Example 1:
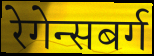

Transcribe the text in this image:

रेगेन्सबर्ग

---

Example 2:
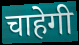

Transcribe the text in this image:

चाहेगी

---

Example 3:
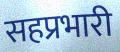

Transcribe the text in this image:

सहप्रभारी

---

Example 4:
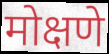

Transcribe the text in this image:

मोक्षणे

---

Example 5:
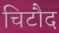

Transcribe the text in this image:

चिटौद